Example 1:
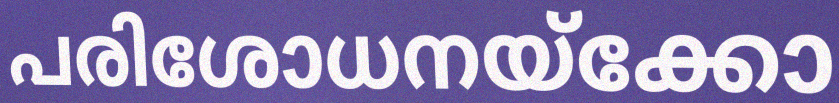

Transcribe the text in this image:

പരിശോധനയ്ക്കോ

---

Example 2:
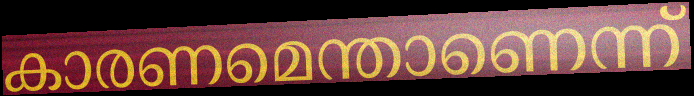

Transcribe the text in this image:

കാരണമെന്താണെന്ന്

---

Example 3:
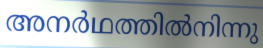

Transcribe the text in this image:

അനർഥത്തിൽനിന്നു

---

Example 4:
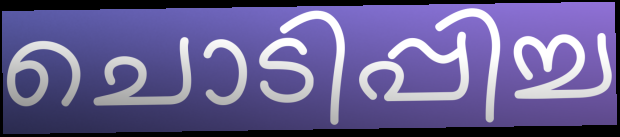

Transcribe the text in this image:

ചൊടിപ്പിച്ച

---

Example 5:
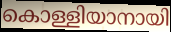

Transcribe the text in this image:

കൊള്ളിയാനായി